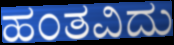
ಹಂತವಿದು